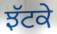
ਝੱਟਕੇ